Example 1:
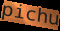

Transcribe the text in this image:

pichu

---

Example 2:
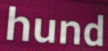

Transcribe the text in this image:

hund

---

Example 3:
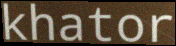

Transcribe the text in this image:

khator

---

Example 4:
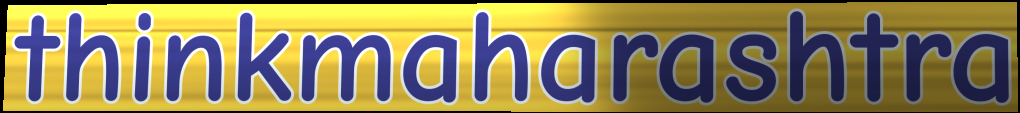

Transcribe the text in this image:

thinkmaharashtra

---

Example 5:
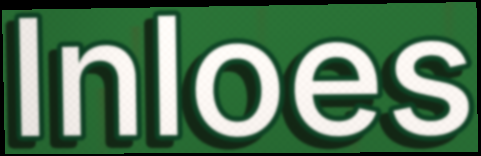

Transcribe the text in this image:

Inloes